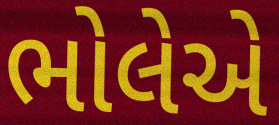
ભોલેએ